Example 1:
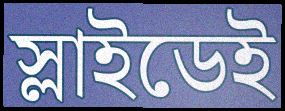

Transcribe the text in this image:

স্লাইডেই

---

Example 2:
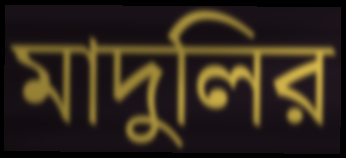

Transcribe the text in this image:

মাদুলির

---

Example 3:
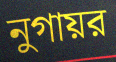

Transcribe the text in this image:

নুগায়র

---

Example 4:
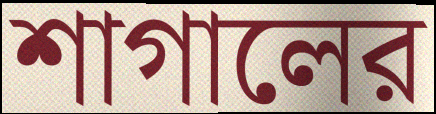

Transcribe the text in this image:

শাগালের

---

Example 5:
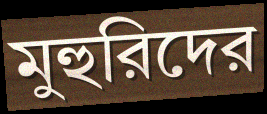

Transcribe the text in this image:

মুহুরিদের